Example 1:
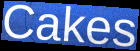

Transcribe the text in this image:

Cakes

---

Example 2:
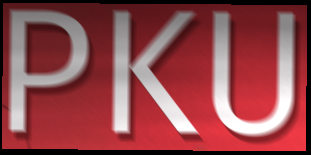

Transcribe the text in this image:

PKU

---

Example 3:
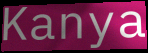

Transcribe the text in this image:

Kanya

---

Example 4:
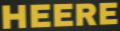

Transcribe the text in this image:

HEERE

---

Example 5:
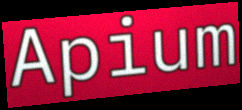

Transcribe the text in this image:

Apium